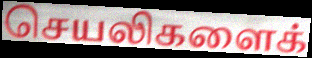
செயலிகளைக்